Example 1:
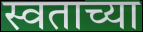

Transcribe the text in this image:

स्वताच्या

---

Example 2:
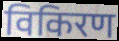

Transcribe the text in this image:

विकिरण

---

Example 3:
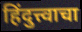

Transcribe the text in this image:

हिंदुत्त्वाचा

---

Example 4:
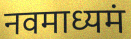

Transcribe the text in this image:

नवमाध्यमं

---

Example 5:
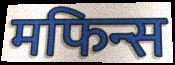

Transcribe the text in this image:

मफिन्स